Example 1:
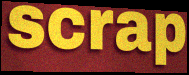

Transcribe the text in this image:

scrap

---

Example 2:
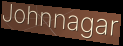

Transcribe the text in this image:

Johnnagar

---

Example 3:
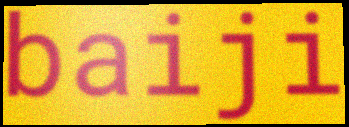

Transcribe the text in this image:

baiji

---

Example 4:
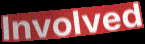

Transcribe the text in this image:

Involved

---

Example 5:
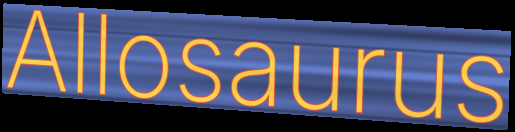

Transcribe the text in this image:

Allosaurus